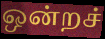
ஒன்றச்